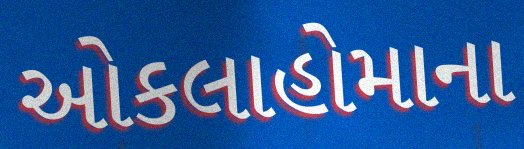
ઓકલાહોમાના